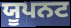
ਯੂਪਨਟ